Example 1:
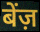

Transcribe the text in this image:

बेंज़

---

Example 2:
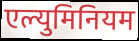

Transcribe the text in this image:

एल्युमिनियम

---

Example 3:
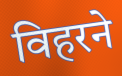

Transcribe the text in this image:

विहरने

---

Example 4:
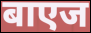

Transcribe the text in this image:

बाएज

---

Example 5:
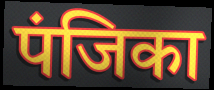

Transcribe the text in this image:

पंजिका